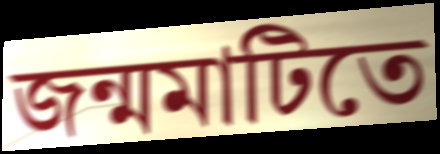
জন্মমাটিতে